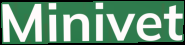
Minivet